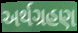
અર્થગ્રહણ